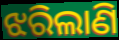
ଝରିଲାଣି